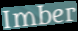
Imber